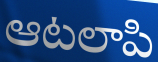
ఆటలాపి